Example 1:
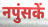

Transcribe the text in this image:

नपुंसकें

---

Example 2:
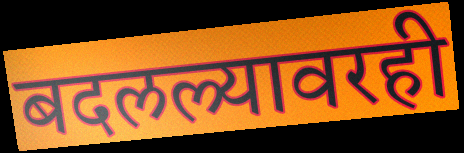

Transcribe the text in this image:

बदलल्यावरही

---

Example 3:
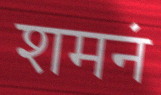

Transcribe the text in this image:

शमनं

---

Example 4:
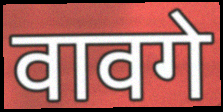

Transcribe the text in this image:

वावगे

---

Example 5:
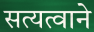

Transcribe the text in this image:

सत्यत्वाने